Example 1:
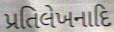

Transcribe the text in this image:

પ્રતિલેખનાદિ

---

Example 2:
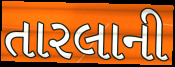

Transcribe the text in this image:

તારલાની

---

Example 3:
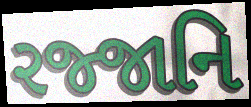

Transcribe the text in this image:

રજ્જાનિ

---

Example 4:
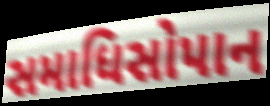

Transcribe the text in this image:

સમાધિસોપાન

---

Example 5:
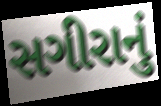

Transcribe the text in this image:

સગીરાનું